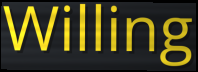
Willing